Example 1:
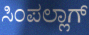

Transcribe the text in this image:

ಸಿಂಪಲ್ಲಾಗ್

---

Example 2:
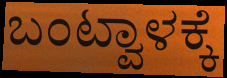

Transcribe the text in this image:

ಬಂಟ್ವಾಳಕ್ಕೆ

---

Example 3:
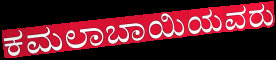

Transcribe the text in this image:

ಕಮಲಾಬಾಯಿಯವರು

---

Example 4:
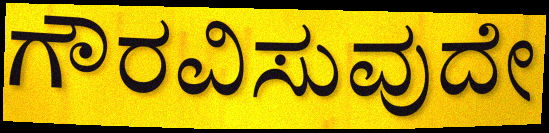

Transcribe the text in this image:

ಗೌರವಿಸುವುದೇ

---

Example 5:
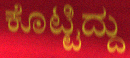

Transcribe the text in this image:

ಕೊಟ್ಟಿದ್ದು